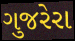
ગુજરેરા